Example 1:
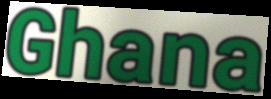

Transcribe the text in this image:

Ghana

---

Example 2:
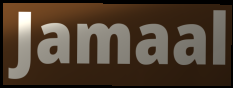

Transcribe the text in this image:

Jamaal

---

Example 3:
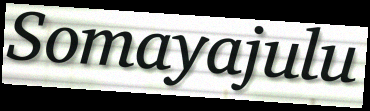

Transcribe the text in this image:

Somayajulu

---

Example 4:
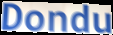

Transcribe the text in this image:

Dondu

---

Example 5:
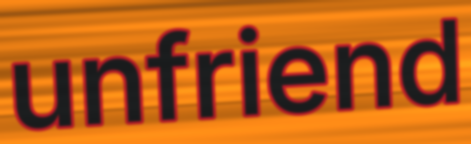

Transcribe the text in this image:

unfriend